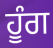
ਹੂੰਗ